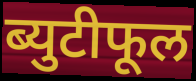
ब्युटीफूल